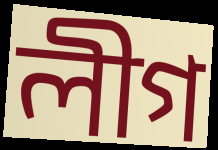
লীগ